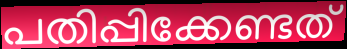
പതിപ്പിക്കേണ്ടത്